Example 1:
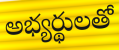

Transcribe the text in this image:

అభ్యర్థులతో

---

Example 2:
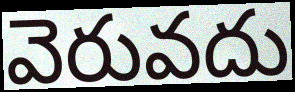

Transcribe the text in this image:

వెరువదు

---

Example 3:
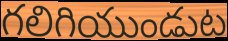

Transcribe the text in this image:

గలిగియుండుట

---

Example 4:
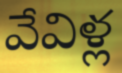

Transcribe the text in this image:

వేవిళ్ల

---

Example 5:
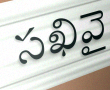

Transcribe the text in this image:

సఖివై